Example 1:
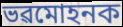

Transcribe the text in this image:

ভৱমোহনক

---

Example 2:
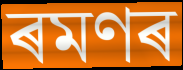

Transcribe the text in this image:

ৰমণৰ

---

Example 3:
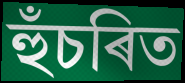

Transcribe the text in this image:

হুঁচৰিত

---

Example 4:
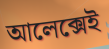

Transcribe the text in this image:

আলেক্সেই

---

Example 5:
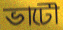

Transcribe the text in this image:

ভাটৌ